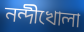
নন্দীখোলা